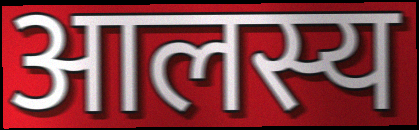
आलस्‍य